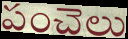
పంచెలు